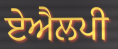
ਏਐਲਪੀ